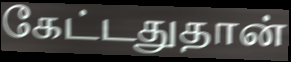
கேட்டதுதான்